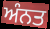
ਅੰਨਤ